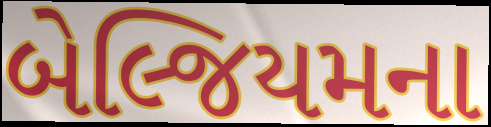
બેલ્જિયમના